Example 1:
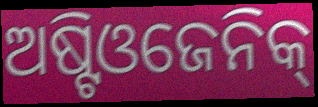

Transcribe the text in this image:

ଅଷ୍ଟିଓଜେନିକ୍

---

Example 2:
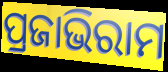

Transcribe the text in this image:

ପ୍ରଜାଭିରାମ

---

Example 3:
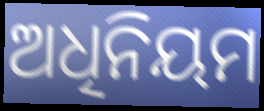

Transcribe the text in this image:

ଅଧିନିୟମ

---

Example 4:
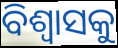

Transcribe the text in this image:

ବିଶ୍ୱାସକୁ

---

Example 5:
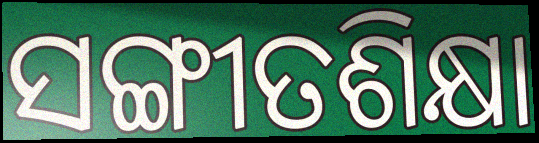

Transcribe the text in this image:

ସଙ୍ଗୀତଶିକ୍ଷା